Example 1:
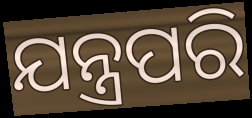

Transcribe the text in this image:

ଯନ୍ତ୍ରପରି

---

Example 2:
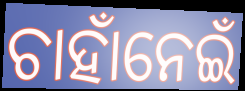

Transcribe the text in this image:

ଚାହାଁନେଇଁ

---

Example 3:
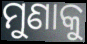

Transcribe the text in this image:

ମୁଣାକୁ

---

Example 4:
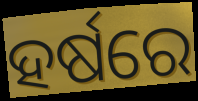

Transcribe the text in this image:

ହର୍ଷରେ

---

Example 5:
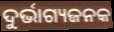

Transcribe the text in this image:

ଦୁର୍ଭାଗ୍ୟଜନକ